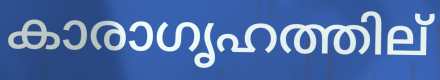
കാരാഗൃഹത്തില്